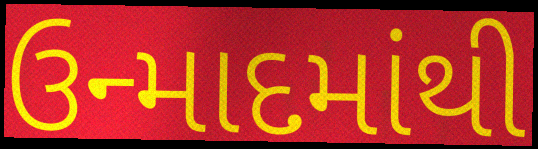
ઉન્માદમાંથી